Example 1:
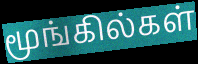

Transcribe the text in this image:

மூங்கில்கள்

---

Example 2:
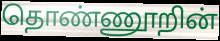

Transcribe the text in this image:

தொண்ணூறின்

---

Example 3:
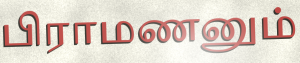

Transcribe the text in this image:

பிராமணனும்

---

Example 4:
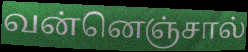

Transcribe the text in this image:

வன்னெஞ்சால்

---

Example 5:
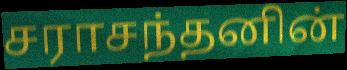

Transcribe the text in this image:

சராசந்தனின்